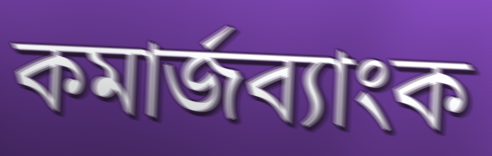
কমার্জব্যাংক